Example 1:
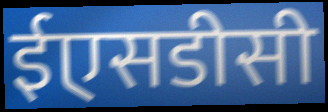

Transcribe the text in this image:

ईएसडीसी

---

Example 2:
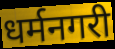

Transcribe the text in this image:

धर्मनगरी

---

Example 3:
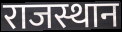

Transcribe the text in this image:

राजस्थान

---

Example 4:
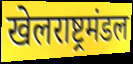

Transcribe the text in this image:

खेलराष्ट्रमंडल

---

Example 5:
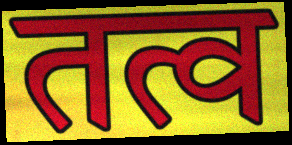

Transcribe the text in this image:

तत्व